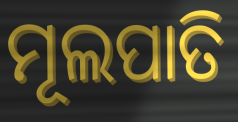
ମୂଲପାତି